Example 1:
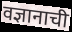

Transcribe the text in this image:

वज्ञानाची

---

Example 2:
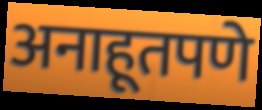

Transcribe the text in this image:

अनाहूतपणे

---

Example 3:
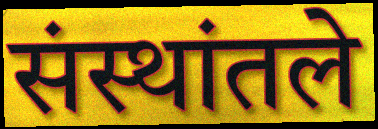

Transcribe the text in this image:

संस्थांतले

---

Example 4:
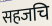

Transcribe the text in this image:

सहजचि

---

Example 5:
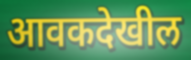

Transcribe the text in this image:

आवकदेखील